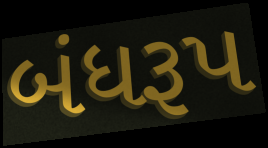
બંધરૂપ